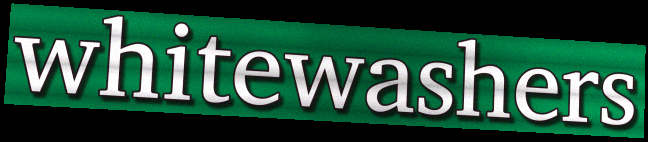
whitewashers